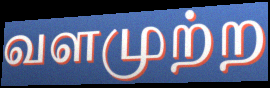
வளமுற்ற